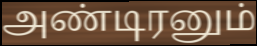
அண்டிரனும்